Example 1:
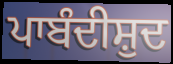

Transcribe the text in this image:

ਪਾਬੰਦੀਸ਼ੁਦ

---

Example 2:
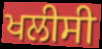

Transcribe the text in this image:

ਖਲੀਸੀ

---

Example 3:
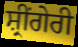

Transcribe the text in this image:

ਸ਼੍ਰੀਂਗੇਰੀ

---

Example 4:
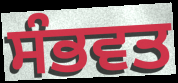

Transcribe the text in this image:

ਸੰਭਵਤ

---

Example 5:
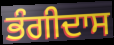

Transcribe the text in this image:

ਭੰਗੀਦਾਸ